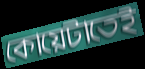
কোয়েটাতেই